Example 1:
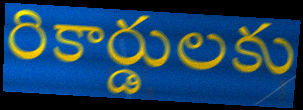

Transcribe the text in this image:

రికార్డులకు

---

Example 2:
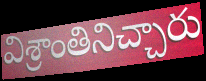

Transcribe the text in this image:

విశ్రాంతినిచ్చారు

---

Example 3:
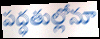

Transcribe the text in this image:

పద్ధతుల్లోనూ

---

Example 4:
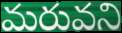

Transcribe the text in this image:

మరువని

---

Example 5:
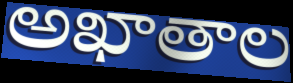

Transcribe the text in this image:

అఖాతాల